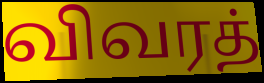
விவரத்